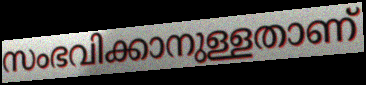
സംഭവിക്കാനുള്ളതാണ്